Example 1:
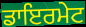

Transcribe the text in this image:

ਡਾਇਰਮੇਟ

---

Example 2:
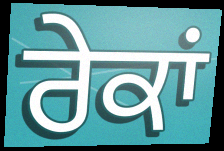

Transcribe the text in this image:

ਰੇਕਾਂ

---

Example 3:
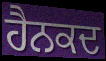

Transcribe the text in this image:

ਹੈਨਕਦ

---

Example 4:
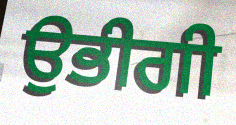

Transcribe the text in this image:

ਉਭੀਗੀ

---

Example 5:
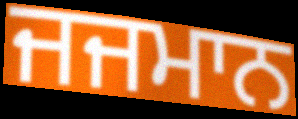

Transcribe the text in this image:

ਜਜਮਾਨ